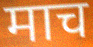
माच